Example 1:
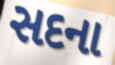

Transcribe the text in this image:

સદના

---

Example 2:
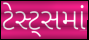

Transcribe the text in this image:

ટેસ્ટ્સમાં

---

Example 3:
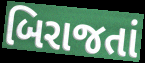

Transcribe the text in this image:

બિરાજતાં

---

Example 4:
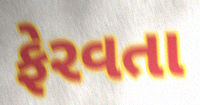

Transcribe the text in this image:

ફેરવતા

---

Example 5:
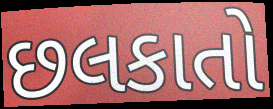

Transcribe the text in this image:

છલકાતો